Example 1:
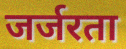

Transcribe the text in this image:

जर्जरता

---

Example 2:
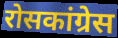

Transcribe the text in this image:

रोसकांग्रेस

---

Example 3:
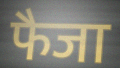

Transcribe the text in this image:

फैजा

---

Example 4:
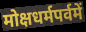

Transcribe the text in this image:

मोक्षधर्मपर्वमें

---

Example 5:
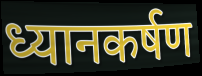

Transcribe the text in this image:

ध्यानकर्षण